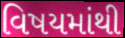
વિષયમાંથી